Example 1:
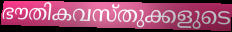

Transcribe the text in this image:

ഭൗതികവസ്തുക്കളുടെ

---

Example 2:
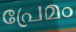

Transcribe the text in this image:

പ്രേമം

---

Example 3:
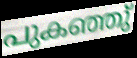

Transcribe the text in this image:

പുകഞ്ഞു്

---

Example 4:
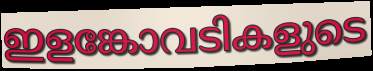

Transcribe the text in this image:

ഇളങ്കോവടികളുടെ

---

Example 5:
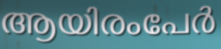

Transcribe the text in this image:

ആയിരംപേർ